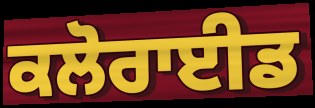
ਕਲੋਰਾਈਡ